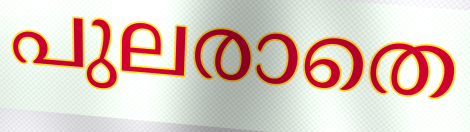
പുലരാതെ